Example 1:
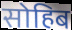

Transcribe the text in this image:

सोहिब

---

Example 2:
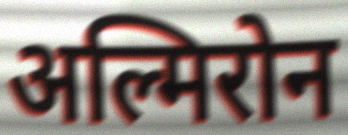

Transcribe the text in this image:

अल्मिरोन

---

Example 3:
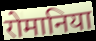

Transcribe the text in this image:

रोमानिया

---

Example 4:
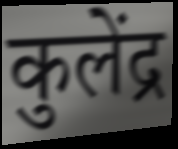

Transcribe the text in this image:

कुलेंद्र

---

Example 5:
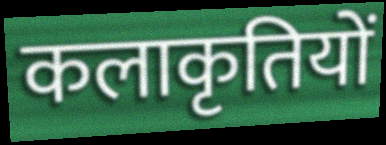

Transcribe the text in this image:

कलाकृतियों